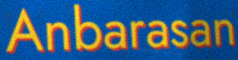
Anbarasan